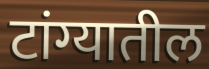
टांग्यातील